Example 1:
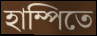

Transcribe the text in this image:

হাম্পিতে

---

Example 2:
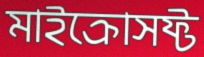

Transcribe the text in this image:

মাইক্রোসফ্ট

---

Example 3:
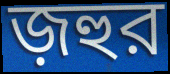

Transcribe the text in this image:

জ়হুর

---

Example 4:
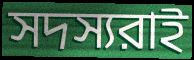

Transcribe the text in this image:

সদস্যরাই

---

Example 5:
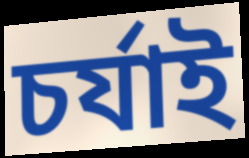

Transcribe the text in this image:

চর্যাই